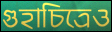
গুহাচিত্রেও